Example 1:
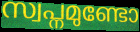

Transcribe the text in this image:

സ്വപ്നമുണ്ടോ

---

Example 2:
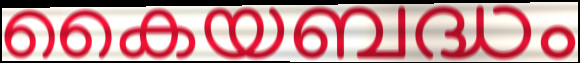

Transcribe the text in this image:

കൈയബദ്ധം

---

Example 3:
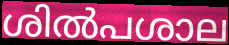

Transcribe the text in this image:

ശിൽപശാല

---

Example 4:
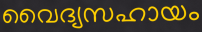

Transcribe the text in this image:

വൈദ്യസഹായം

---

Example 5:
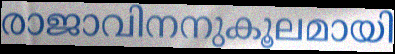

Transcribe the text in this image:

രാജാവിനനുകൂലമായി